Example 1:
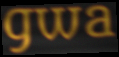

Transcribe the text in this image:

gwa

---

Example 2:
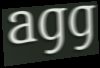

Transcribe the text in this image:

agg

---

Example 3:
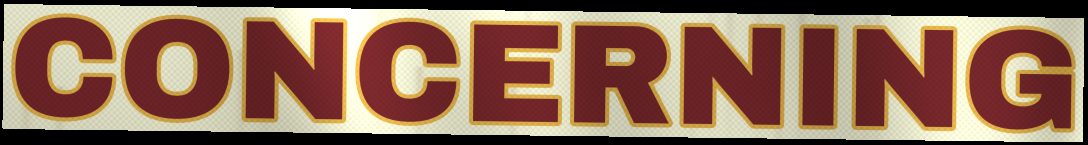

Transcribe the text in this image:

CONCERNING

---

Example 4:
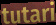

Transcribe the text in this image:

tutari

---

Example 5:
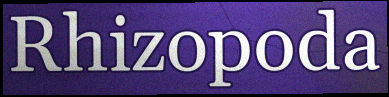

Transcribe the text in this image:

Rhizopoda